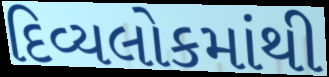
દિવ્યલોકમાંથી